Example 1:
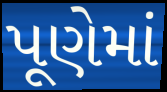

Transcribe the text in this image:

પૂણેમાં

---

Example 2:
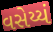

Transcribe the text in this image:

વસેય્યં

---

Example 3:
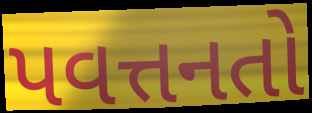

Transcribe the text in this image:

પવત્તનતો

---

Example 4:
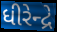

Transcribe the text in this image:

ધીરેન્દ્રે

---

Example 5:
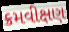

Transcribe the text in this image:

ક્રમવીક્ષણ